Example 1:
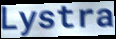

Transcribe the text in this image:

Lystra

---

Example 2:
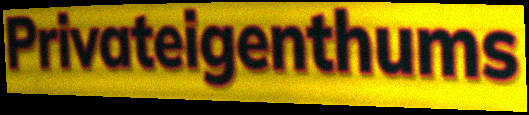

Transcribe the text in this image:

Privateigenthums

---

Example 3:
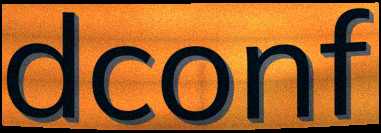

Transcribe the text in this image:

dconf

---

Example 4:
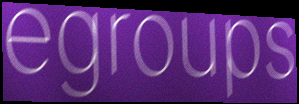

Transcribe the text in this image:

egroups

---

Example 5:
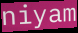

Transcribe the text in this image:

niyam